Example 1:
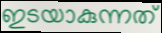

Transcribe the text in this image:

ഇടയാകുന്നത്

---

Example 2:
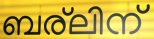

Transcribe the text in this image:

ബര്ലിന്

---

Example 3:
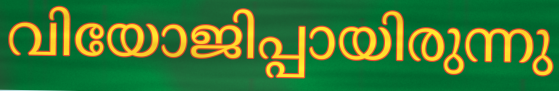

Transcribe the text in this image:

വിയോജിപ്പായിരുന്നു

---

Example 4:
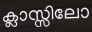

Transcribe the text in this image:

ക്ലാസ്സിലോ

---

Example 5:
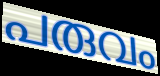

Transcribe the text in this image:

പരുവം